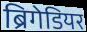
ब्रिगेडियर